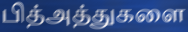
பித்அத்துகளை